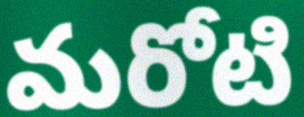
మరోటి